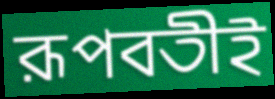
রূপবতীই